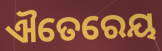
ଐତେରେୟ